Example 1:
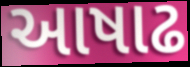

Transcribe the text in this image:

આષાઢ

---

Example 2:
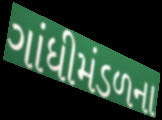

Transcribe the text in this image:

ગાંધીમંડળના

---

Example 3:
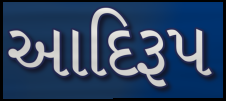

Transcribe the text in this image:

આદિરૂપ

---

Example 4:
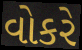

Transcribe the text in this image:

વોકરે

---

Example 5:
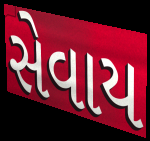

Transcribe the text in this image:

સેવાય